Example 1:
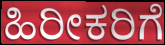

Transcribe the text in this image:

ಹಿರೀಕರಿಗೆ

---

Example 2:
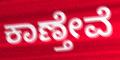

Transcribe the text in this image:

ಕಾಣ್ತೇವೆ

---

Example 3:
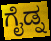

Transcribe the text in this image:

ಗೈಡ್ನ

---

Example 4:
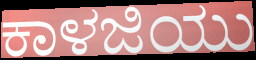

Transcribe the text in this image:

ಕಾಳಜಿಯು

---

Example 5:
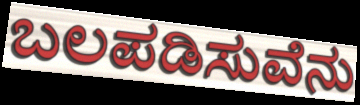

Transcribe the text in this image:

ಬಲಪಡಿಸುವೆನು